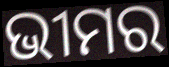
ଭୀମର